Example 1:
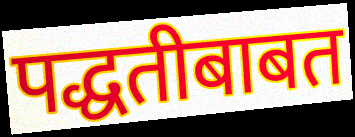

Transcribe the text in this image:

पद्धतीबाबत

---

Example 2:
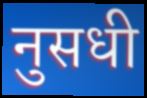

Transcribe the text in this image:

नुसधी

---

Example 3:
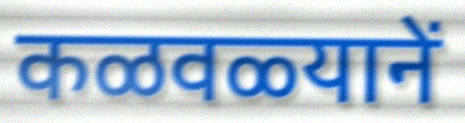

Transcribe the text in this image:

कळवळ्यानें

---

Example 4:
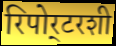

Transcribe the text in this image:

रिपोर्टरशी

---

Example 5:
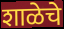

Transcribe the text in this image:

शाळेचे